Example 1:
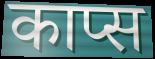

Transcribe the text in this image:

काप्स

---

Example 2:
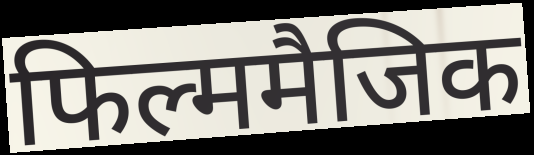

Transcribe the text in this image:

फिल्ममैजिक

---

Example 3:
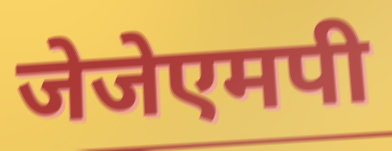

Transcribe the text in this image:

जेजेएमपी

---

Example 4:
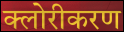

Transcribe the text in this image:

क्लोरीकरण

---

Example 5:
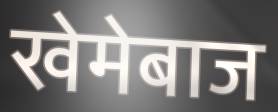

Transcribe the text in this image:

खेमेबाज